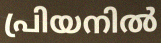
പ്രിയനിൽ